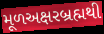
મૂળઅક્ષરબ્રહ્મથી